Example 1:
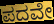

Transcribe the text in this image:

ಪದವೇ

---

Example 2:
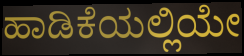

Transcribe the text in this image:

ಹಾಡಿಕೆಯಲ್ಲಿಯೇ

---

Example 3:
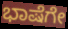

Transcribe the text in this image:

ಭಾಷೆಗೇ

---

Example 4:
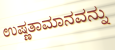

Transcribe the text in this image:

ಉಷ್ಣತಾಮಾನವನ್ನು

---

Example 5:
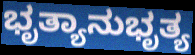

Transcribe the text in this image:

ಭೃತ್ಯಾನುಭೃತ್ಯ